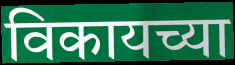
विकायच्या